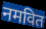
नमवित